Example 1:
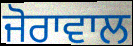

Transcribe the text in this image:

ਜੋਰਾਵਾਲ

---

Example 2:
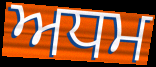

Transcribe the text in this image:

ਅਧਮ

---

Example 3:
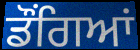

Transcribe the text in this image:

ਡੌਂਗਿਆਂ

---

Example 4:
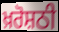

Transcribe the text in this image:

ਖ਼ਰੋਸ਼ਠੀ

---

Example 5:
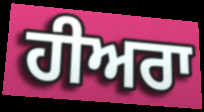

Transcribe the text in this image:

ਹੀਅਰਾ